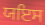
ਯਇਸ